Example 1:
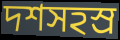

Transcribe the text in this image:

দশসহস্র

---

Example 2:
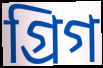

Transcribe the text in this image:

গ্রিগ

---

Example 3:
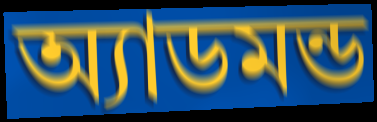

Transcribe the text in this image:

অ্যাডমন্ড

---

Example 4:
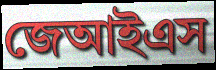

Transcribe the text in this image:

জেআইএস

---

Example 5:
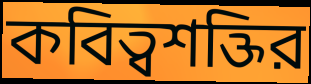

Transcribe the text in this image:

কবিত্বশক্তির